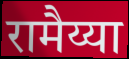
रामैय्या